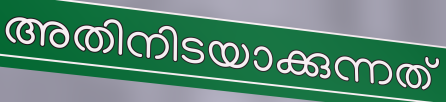
അതിനിടയാക്കുന്നത്